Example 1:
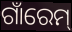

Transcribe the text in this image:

ଗାଁରେମ୍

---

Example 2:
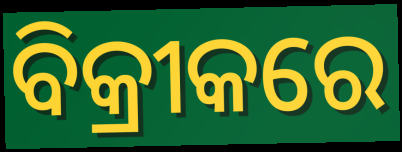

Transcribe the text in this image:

ବିକ୍ରୀକରେ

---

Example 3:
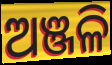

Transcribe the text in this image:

ଅଞ୍ଜଳି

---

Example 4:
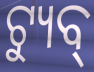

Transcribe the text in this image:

ଟ୍ୟୁବ୍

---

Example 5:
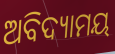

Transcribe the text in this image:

ଅବିଦ୍ୟାମୟ